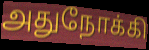
அதுநோக்கி